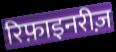
रिफ़ाइनरीज़